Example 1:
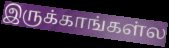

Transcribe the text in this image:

இருக்காங்கள்ல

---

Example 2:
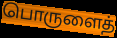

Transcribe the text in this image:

பொருளைத்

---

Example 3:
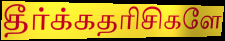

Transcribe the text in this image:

தீர்க்கதரிசிகளே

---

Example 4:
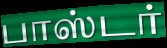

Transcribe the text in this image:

பாஸ்டர்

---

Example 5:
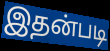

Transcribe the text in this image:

இதன்படி